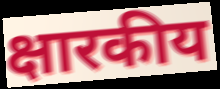
क्षारकीय